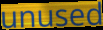
unused